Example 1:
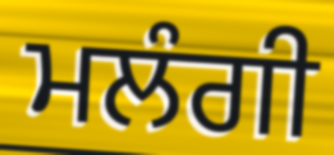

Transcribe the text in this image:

ਮਲੰਗੀ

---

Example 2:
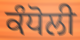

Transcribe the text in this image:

ਕੰਧੋਲੀ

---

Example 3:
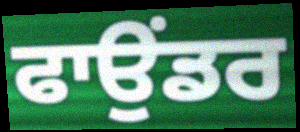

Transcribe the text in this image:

ਫਾਉਂਡਰ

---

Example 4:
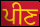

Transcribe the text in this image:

ਪੀਣ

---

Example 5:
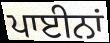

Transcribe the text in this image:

ਪਾਈਨਾਂ